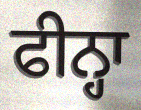
ਫੀਨ੍ਹਾ